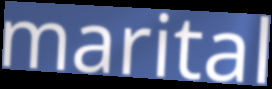
marital